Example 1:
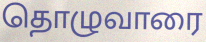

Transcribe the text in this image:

தொழுவாரை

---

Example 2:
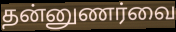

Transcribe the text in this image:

தன்னுணர்வை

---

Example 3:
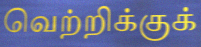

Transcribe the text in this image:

வெற்றிக்குக்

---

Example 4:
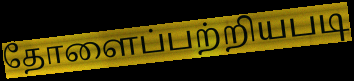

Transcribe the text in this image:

தோளைப்பற்றியபடி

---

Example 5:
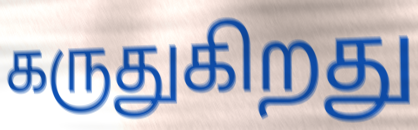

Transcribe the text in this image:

கருதுகிறது